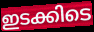
ഇടക്കിടെ